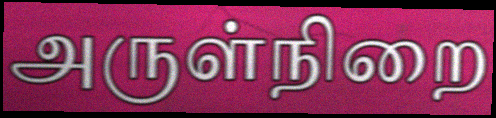
அருள்நிறை